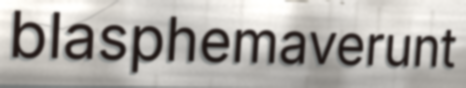
blasphemaverunt